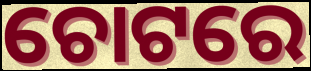
ଚୋଟରେ